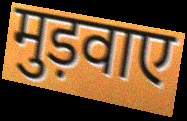
मुड़वाए